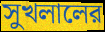
সুখলালের